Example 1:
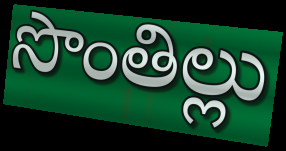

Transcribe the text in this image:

సొంతిల్లు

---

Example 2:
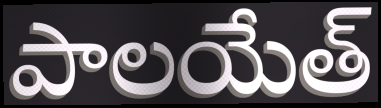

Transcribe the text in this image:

పాలయేత్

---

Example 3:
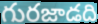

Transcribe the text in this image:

గురజాడది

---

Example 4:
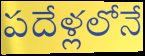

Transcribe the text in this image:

పదేళ్లలోనే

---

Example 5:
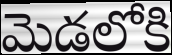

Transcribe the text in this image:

మెడలోకి